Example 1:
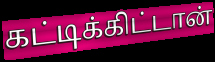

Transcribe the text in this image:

கட்டிக்கிட்டான்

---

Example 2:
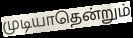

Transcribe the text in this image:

முடியாதென்றும்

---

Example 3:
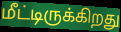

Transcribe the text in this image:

மீட்டிருக்கிறது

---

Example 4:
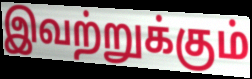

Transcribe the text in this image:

இவற்றுக்கும்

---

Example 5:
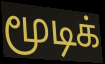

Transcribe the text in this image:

மூடிக்